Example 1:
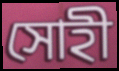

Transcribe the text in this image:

সোহী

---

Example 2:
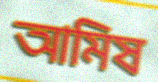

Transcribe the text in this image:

আমিষ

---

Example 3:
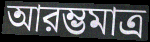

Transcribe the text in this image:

আরম্ভমাত্র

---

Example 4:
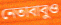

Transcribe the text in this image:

নেতাবাবুও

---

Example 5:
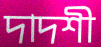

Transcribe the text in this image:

দাদশী